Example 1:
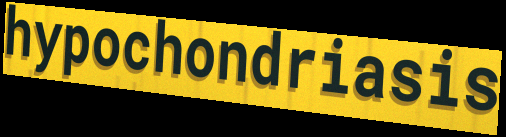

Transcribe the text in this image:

hypochondriasis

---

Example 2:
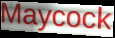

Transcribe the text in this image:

Maycock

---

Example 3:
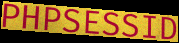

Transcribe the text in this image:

PHPSESSID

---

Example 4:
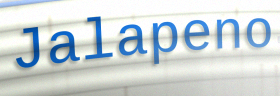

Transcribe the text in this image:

Jalapeno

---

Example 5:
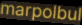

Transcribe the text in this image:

marpolbul